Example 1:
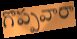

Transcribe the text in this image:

గొప్పవారా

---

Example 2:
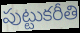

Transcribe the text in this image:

పుట్టుకరీతి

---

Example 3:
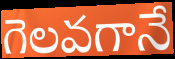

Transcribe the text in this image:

గెలవగానే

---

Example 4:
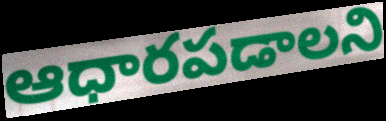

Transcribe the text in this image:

ఆధారపడాలని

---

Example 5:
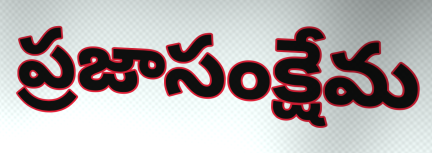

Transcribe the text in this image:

ప్రజాసంక్షేమ